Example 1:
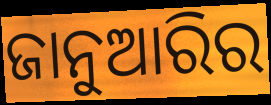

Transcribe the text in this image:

ଜାନୁଆରିର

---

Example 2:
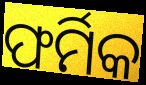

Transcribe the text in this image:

ଫର୍ମିକ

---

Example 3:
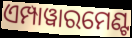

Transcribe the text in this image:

ଏମ୍ପାୱାରମେଣ୍ଟ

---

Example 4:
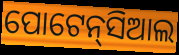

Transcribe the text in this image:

ପୋଟେନ୍‌ସିଆଲ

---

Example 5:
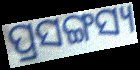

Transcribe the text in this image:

ପ୍ରସଙ୍ଗସ୍ୟ